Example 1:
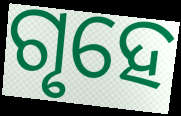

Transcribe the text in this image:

ଗୃହେ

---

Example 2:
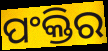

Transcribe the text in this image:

ପଂକ୍ତିର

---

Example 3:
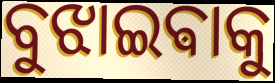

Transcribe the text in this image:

ବୁଝାଇଵାକୁ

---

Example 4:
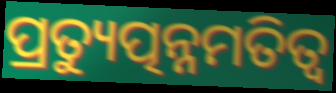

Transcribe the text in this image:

ପ୍ରତ୍ୟୁତ୍ପନ୍ନମତିତ୍ୱ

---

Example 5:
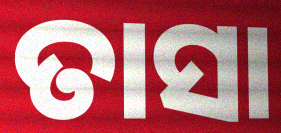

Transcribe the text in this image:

ତାସା